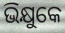
ଭିକ୍ଷୁକେ